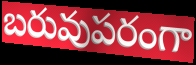
బరువుపరంగా